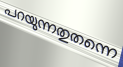
പറയുന്നതുതന്നെ